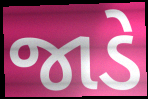
જાડે